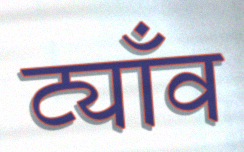
ट्याँव